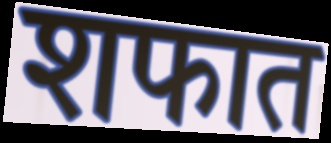
शफात